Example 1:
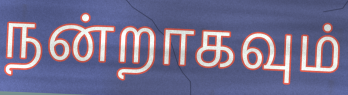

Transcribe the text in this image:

நன்றாகவும்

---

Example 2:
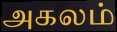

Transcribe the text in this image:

அகலம்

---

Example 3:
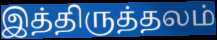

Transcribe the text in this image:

இத்திருத்தலம்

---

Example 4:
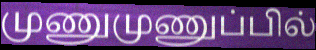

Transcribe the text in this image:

முணுமுணுப்பில்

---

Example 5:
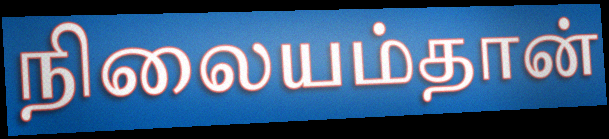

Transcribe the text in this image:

நிலையம்தான்